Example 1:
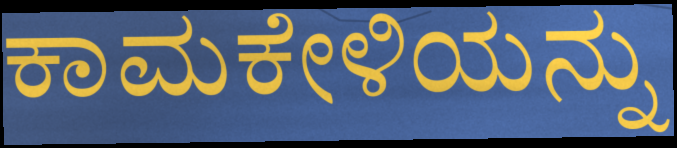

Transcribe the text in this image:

ಕಾಮಕೇಳಿಯನ್ನು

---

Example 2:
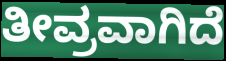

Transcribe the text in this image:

ತೀವ್ರವಾಗಿದೆ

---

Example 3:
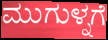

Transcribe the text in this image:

ಮುಗುಳ್ನಗೆ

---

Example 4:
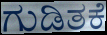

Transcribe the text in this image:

ಗುಡಿತಕೆ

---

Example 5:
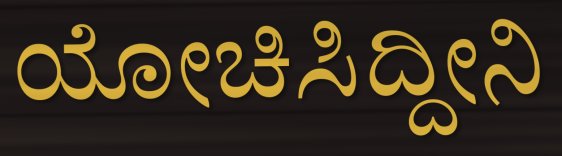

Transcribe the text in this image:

ಯೋಚಿಸಿದ್ದೀನಿ